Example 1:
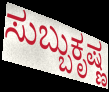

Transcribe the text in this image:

ಸುಬ್ಬುಕೃಷ್ಣ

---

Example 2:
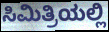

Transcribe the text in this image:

ಸಿಮಿತ್ರಿಯಲ್ಲಿ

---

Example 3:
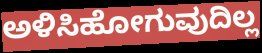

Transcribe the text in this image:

ಅಳಿಸಿಹೋಗುವುದಿಲ್ಲ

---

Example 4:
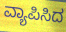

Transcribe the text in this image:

ವ್ಯಾಪಿಸಿದ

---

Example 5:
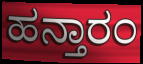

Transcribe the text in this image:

ಹನ್ತಾರಂ